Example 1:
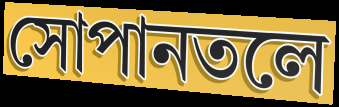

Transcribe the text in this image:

সোপানতলে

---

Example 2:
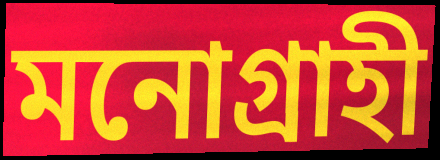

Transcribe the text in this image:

মনোগ্রাহী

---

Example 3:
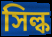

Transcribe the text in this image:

সিল্ক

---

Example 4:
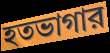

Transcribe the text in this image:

হতভাগার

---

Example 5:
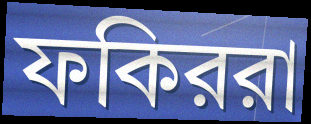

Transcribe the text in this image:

ফকিররা